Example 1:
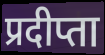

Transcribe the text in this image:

प्रदीप्ता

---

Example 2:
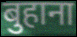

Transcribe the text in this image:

बुहाना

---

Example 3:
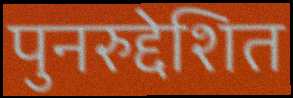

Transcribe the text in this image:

पुनरुद्देशित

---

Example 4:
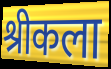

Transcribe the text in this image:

श्रीकला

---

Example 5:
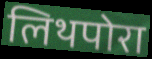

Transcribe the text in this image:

लिथपोरा